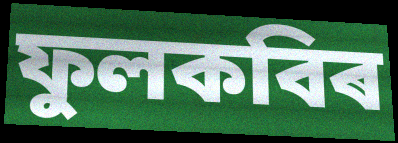
ফুলকবিৰ